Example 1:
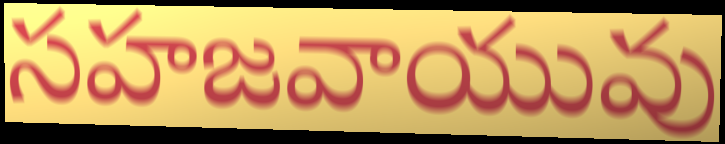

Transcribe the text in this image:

సహజవాయువు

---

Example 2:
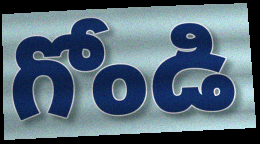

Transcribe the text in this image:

గోండి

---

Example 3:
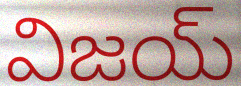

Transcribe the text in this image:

విజయ్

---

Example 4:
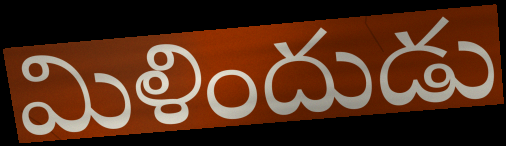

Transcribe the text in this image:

మిళిందుడు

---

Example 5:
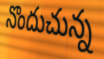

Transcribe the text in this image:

నొందుచున్న